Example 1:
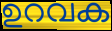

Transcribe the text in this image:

ഉറവക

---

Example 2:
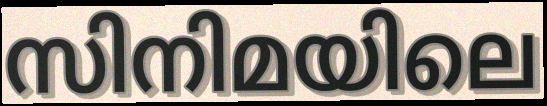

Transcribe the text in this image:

സിനിമയിലെ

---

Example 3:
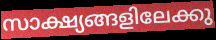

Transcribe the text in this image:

സാക്ഷ്യങ്ങളിലേക്കു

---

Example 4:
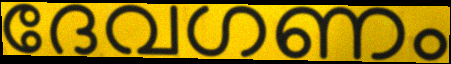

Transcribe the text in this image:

ദേവഗണം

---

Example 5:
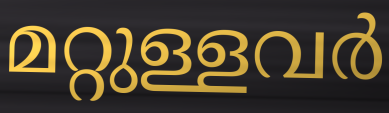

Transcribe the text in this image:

മറ്റുള്ളവർ